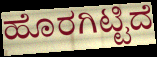
ಹೊರಗಿಟ್ಟಿದೆ